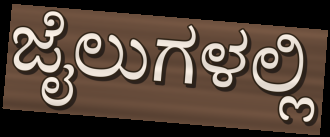
ಜೈಲುಗಳಲ್ಲಿ